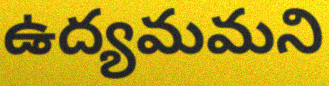
ఉద్యమమని